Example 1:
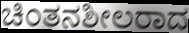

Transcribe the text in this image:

ಚಿಂತನಶೀಲರಾದ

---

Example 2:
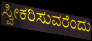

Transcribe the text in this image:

ಸ್ವೀಕರಿಸುವರೆಂದು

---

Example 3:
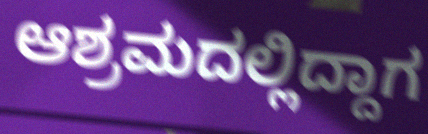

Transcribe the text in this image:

ಆಶ್ರಮದಲ್ಲಿದ್ದಾಗ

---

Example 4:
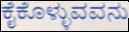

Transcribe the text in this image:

ಕೈಕೊಳ್ಳುವವನು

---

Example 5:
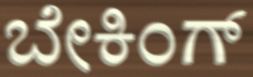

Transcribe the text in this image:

ಬೇಕಿಂಗ್